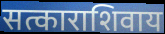
सत्काराशिवाय